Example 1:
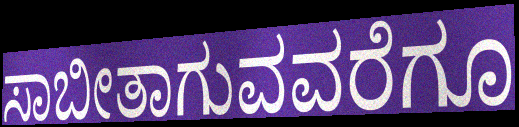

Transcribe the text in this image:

ಸಾಬೀತಾಗುವವರೆಗೂ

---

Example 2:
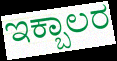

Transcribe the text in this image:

ಇಕ್ಬಾಲರ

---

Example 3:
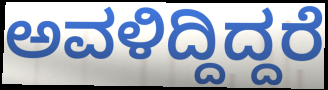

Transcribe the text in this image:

ಅವಳಿದ್ದಿದ್ದರೆ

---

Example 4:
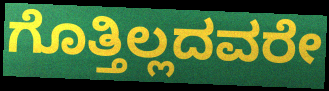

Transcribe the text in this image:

ಗೊತ್ತಿಲ್ಲದವರೇ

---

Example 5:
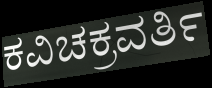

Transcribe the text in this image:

ಕವಿಚಕ್ರವರ್ತಿ